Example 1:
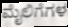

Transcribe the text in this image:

ಮೈಲಿಗೆಗಳ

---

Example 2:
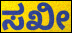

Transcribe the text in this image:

ಸಖೀ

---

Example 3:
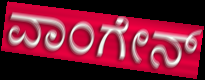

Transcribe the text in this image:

ವಾಂಗೇನ್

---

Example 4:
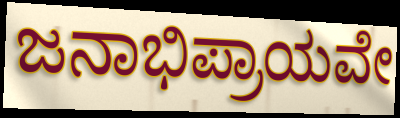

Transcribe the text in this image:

ಜನಾಭಿಪ್ರಾಯವೇ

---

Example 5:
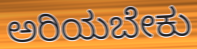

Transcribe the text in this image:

ಅರಿಯಬೇಕು